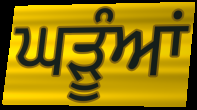
ਘੜੂੰਆਂ